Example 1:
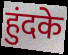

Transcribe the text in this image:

हुंदके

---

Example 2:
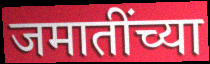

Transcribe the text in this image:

जमातींच्या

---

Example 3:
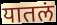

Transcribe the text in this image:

यातलं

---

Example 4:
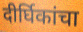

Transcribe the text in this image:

दीर्घिकांचा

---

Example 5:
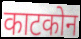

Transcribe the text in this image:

काटकोन